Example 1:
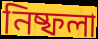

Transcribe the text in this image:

নিষ্ফলা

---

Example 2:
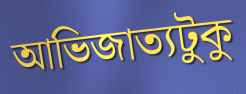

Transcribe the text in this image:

আভিজাত্যটুকু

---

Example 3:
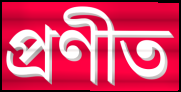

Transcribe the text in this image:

প্রণীত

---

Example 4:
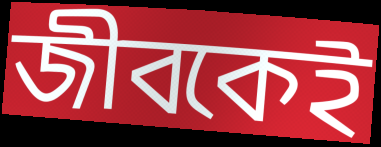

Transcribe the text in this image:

জীবকেই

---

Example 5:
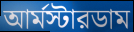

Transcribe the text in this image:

আর্মস্টারডাম